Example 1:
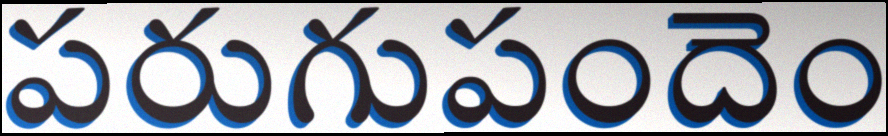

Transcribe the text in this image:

పరుగుపందెం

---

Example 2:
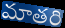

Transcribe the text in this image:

మాతరి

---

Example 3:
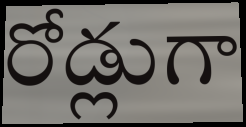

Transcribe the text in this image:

రోడ్లుగా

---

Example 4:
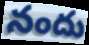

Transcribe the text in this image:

నందు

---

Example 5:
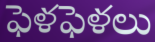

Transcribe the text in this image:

ఫెళఫెళలు